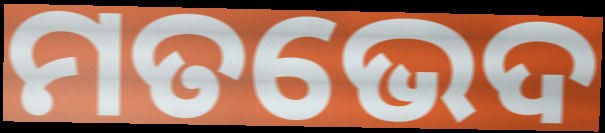
ମତଭେଦ